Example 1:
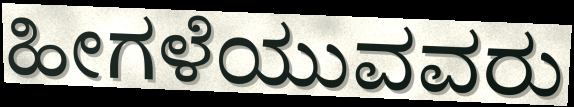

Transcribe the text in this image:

ಹೀಗಳೆಯುವವರು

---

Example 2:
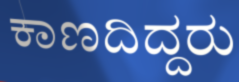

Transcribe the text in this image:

ಕಾಣದಿದ್ದರು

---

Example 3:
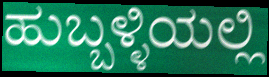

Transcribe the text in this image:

ಹುಬ್ಬಳ್ಳಿಯಲ್ಲಿ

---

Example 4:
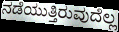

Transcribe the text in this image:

ನಡೆಯುತ್ತಿರುವುದೆಲ್ಲ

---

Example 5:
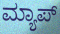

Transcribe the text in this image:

ಮ್ಯಾಪ್